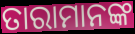
ତାରାମାନଙ୍କ